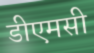
डीएमसी